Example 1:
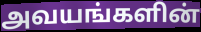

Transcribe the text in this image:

அவயங்களின்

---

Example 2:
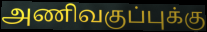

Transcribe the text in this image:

அணிவகுப்புக்கு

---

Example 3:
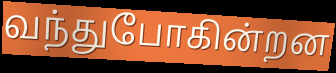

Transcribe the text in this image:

வந்துபோகின்றன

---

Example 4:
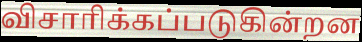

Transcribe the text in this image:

விசாரிக்கப்படுகின்றன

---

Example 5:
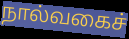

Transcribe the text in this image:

நால்வகைச்